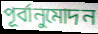
পূর্বানুমোদন